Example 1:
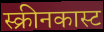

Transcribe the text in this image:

स्क्रीनकास्ट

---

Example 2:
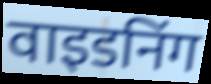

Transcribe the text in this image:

वाइडनिंग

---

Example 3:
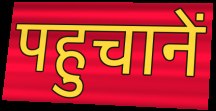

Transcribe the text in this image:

पहुचानें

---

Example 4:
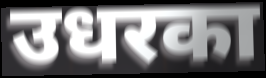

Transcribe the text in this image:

उधरका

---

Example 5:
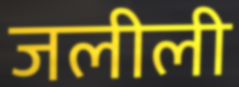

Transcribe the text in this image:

जलीली